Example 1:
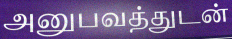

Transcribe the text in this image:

அனுபவத்துடன்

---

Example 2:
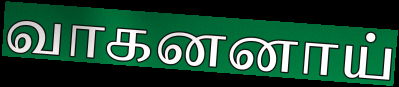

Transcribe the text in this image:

வாகனனாய்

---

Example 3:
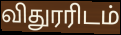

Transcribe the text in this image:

விதுரரிடம்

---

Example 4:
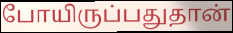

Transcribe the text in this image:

போயிருப்பதுதான்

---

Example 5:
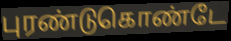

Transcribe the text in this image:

புரண்டுகொண்டே